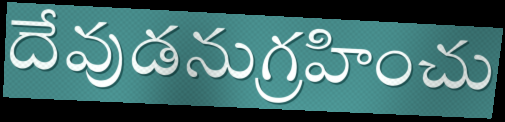
దేవుడనుగ్రహించు